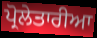
ਪ੍ਰੋਲੇਤਾਰੀਆ